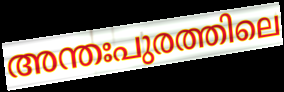
അന്തഃപുരത്തിലെ